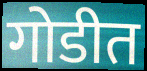
गोडीत